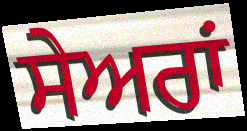
ਸੇਅਰਾਂ